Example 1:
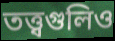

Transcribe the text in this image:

তত্ত্বগুলিও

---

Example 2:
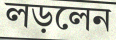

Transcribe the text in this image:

লড়লেন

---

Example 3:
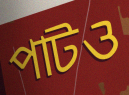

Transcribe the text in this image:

পাটও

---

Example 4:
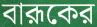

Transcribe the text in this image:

বারূকের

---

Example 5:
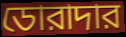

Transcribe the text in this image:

ডোরাদার